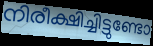
നിരീക്ഷിച്ചിട്ടുണ്ടോ